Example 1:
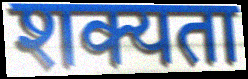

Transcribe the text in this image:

शक्‍यता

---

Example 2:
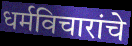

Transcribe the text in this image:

धर्मविचारांचे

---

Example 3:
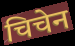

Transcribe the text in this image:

चिचेन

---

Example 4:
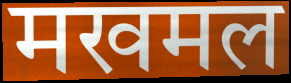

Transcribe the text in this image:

मखमल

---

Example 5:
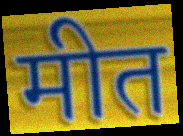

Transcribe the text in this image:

मीत